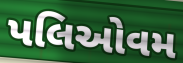
પલિઓવમ